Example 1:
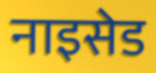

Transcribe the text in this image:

नाइसेड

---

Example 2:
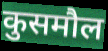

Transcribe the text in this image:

कुसमौल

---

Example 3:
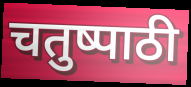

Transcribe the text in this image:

चतुष्पाठी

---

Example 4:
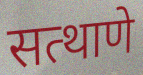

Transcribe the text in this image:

सत्थाणे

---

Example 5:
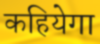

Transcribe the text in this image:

कहियेगा